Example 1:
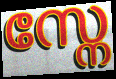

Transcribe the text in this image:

സ്നേ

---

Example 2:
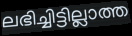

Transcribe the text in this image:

ലഭിച്ചിട്ടില്ലാത്ത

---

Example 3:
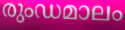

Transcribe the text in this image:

രുംഡമാലം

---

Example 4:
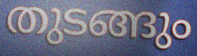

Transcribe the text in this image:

തുടങ്ങും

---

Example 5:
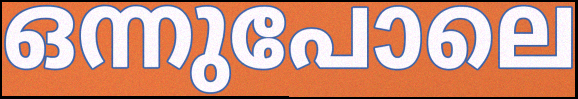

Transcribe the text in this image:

ഒന്നുപോലെ